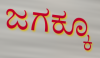
ಜಗಕ್ಕೂ